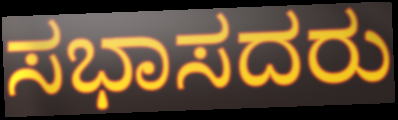
ಸಭಾಸದರು